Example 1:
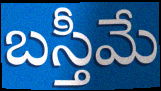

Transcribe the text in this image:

బస్తీమే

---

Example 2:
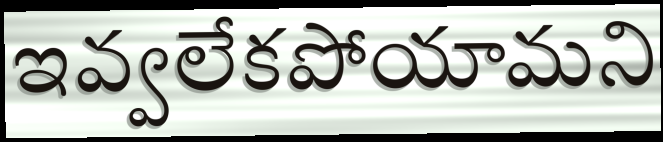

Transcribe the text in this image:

ఇవ్వలేకపోయామని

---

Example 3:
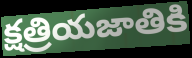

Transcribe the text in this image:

క్షత్రియజాతికి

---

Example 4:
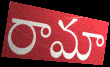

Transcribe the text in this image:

రామా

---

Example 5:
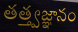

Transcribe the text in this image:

తత్త్వజ్ఞానం